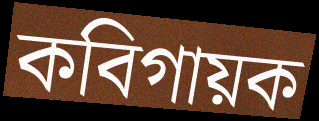
কবিগায়ক